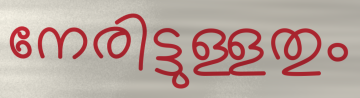
നേരിട്ടുള്ളതും